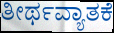
ತೀರ್ಥವ್ಯಾತಕೆ